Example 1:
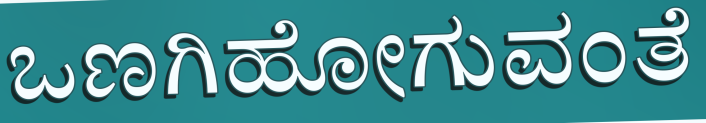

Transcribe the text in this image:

ಒಣಗಿಹೋಗುವಂತೆ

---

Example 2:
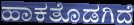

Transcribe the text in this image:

ಹಾಕತೊಡಗಿದೆ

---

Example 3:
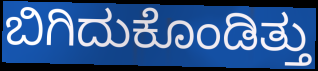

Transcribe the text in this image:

ಬಿಗಿದುಕೊಂಡಿತ್ತು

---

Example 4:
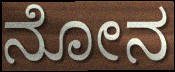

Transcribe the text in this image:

ನೋನ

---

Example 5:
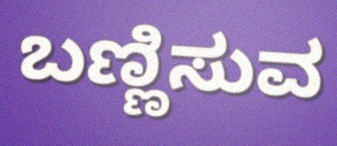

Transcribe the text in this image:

ಬಣ್ಣಿಸುವ